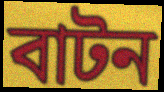
বাটন